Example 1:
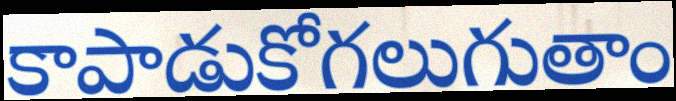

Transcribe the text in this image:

కాపాడుకోగలుగుతాం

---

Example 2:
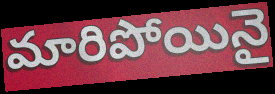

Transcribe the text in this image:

మారిపోయినై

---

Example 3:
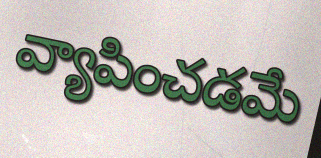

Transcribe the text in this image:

వ్యాపించడమే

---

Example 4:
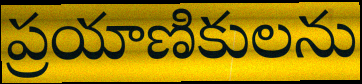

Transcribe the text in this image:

ప్రయాణికులను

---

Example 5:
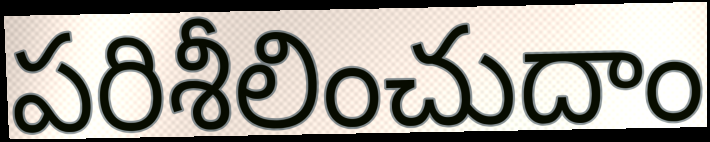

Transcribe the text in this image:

పరిశీలించుదాం